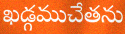
ఖడ్గముచేతను